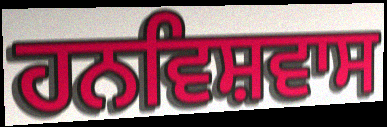
ਹਨਵਿਸ਼ਵਾਸ